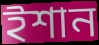
ইশান